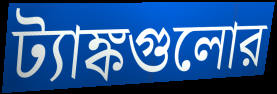
ট্যাঙ্কগুলোর